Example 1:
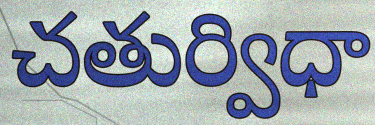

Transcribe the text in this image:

చతుర్విధా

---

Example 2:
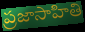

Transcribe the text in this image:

ప్రజాసాహితి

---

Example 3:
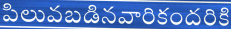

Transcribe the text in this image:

పిలువబడినవారికందరికి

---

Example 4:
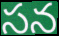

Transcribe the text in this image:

సన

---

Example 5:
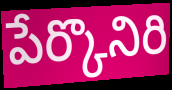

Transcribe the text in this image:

పేర్కొనిరి